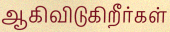
ஆகிவிடுகிறீர்கள்